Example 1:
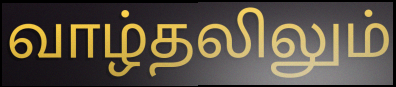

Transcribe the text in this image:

வாழ்தலிலும்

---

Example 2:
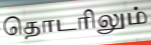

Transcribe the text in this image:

தொடரிலும்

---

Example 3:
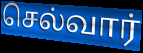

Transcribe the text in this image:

செல்வார்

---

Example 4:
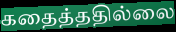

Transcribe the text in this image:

கதைத்ததில்லை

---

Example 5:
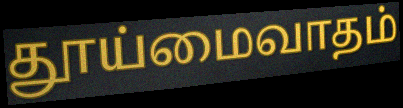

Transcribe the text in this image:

தூய்மைவாதம்